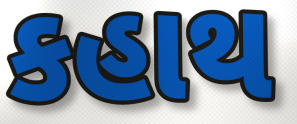
કહાથ